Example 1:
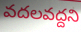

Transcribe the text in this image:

వదలవద్దని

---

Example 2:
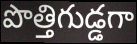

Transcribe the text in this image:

పొత్తిగుడ్డగా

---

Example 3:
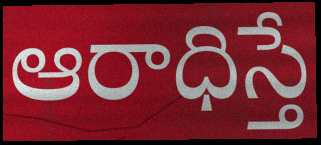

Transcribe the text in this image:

ఆరాధిస్తే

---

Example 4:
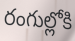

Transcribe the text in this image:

రంగుల్లోకి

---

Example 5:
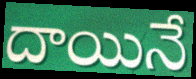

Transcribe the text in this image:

దాయినే